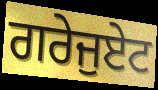
ਗਰੇਜੁਏਟ